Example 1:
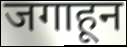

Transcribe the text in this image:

जगाहून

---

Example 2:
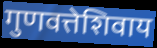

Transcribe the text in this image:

गुणवत्तेशिवाय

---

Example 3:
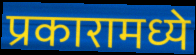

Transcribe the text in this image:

प्रकारामध्ये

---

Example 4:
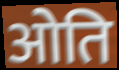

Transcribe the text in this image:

ओति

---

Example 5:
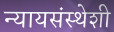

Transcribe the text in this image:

न्यायसंस्थेशी